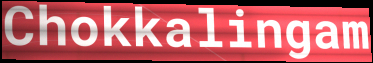
Chokkalingam